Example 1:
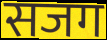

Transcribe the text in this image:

सजग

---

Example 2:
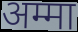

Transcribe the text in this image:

अम्मा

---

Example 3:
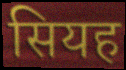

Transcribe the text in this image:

सियह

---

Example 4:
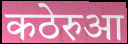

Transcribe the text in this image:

कठेरुआ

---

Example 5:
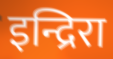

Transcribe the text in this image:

इन्द्रिरा